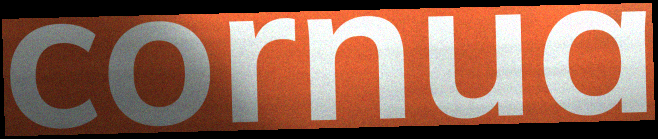
cornua